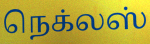
நெக்லஸ்